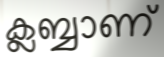
ക്ലബ്ബാണ്